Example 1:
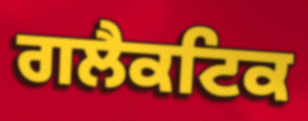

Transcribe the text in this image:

ਗਲੈਕਟਿਕ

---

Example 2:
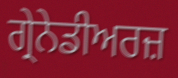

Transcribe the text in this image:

ਗ੍ਰੇਨੇਡੀਅਰਜ਼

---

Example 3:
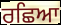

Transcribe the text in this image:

ਰਛਿਆ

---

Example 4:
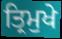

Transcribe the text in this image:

ਤ੍ਰਿਮੁਖੇ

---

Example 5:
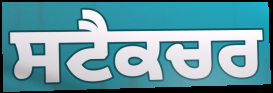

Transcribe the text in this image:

ਸਟੈਕਚਰ